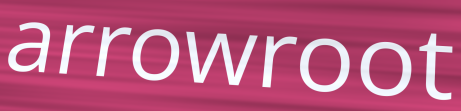
arrowroot